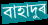
বাহাদুৰ